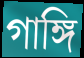
গাঙ্গি